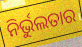
ନିର୍ଭୁଲତାର